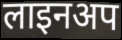
लाइनअप